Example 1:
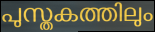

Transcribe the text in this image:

പുസ്തകത്തിലും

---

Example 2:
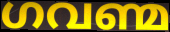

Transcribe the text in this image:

ഗവണ്മ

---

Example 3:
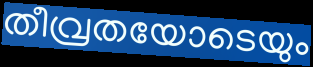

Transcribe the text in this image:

തീവ്രതയോടെയും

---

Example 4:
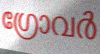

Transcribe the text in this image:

ഗ്രോവർ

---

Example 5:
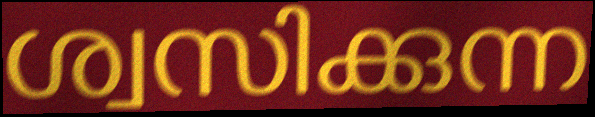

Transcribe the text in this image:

ശ്വസിക്കുന്ന